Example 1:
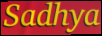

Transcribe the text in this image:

Sadhya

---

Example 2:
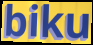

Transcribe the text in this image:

biku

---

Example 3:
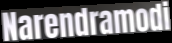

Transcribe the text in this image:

Narendramodi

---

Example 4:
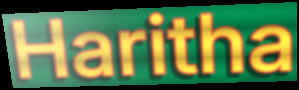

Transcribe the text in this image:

Haritha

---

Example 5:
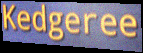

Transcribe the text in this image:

Kedgeree